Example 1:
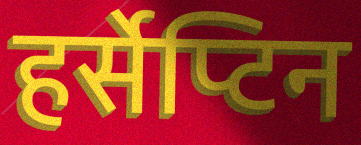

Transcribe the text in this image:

हर्सेप्टिन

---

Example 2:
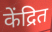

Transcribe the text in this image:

केंद्रित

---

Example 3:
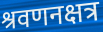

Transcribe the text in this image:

श्रवणनक्षत्र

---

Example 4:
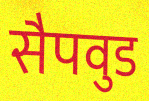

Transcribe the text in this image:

सैपवुड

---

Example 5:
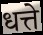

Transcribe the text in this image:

धत्ते